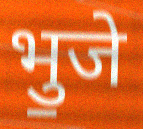
भु॒जे